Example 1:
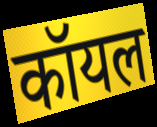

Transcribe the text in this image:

कॉयल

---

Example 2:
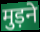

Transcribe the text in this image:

मुड़ने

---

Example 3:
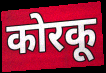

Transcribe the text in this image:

कोरकू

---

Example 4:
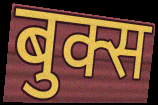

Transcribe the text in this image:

बुक्स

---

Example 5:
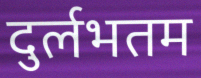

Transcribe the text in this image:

दुर्लभतम